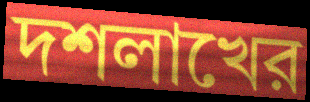
দশলাখের